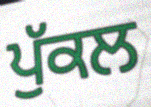
ਪੁੱਕਲ